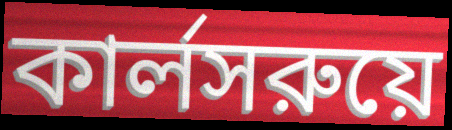
কার্লসরুয়ে